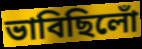
ভাবিছিলোঁ